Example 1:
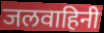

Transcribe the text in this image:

जलवाहिनी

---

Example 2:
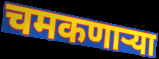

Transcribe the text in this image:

चमकणाऱ्या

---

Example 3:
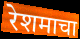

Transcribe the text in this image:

रेशमाचा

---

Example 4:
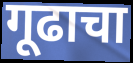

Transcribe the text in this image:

गूढाचा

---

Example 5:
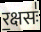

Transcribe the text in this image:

र॒क्षसः॑